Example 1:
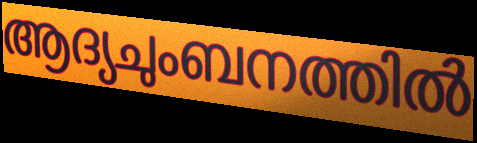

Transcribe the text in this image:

ആദ്യചുംബനത്തിൽ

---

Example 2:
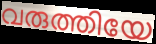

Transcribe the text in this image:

വരുത്തിയേ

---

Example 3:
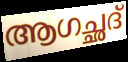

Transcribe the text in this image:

ആഗച്ഛദ്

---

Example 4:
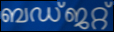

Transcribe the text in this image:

ബഡ്ജറ്റ്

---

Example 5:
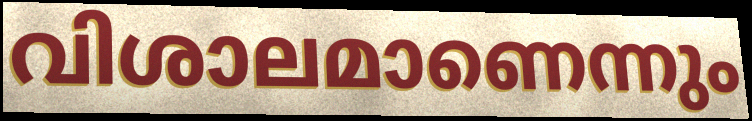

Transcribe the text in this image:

വിശാലമാണെന്നും